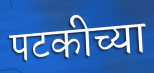
पटकीच्या